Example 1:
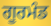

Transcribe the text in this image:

ਗੂਰਮੰਡ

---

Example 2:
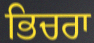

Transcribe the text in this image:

ਭਿਚਰਾ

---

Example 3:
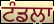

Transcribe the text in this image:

ਟੰਡਲਾ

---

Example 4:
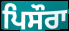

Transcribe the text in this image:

ਪਿਸੌਰਾ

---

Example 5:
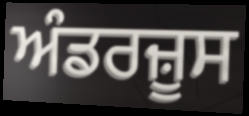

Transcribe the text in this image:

ਅੰਡਰਜ਼ੂਸ